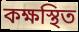
কক্ষস্থিত